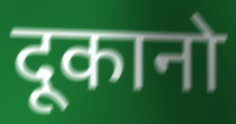
दूकानो